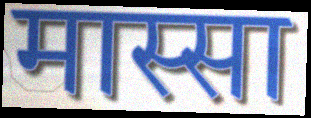
मास्सा